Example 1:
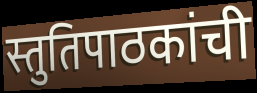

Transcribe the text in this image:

स्तुतिपाठकांची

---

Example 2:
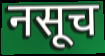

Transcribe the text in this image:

नसूच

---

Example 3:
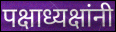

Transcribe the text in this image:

पक्षाध्यक्षांनी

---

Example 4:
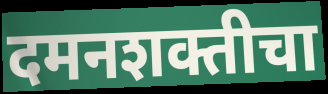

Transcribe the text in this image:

दमनशक्तीचा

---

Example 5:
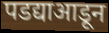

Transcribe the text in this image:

पडद्याआडून